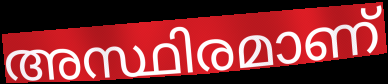
അസ്ഥിരമാണ്